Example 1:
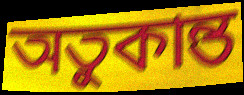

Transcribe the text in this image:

অতুকান্ত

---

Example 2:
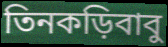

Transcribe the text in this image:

তিনকড়িবাবু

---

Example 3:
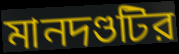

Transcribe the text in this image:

মানদণ্ডটির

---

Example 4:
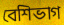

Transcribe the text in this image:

বেশিভাগ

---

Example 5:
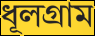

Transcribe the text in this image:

ধূলগ্রাম